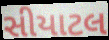
સીયાટલ